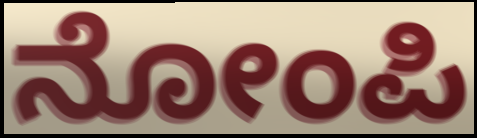
ನೋಂಪಿ